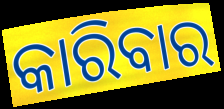
କାରିବାର